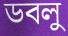
ডবলু